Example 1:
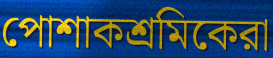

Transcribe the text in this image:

পোশাকশ্রমিকেরা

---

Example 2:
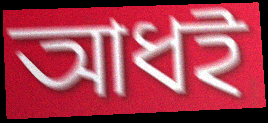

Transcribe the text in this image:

আধই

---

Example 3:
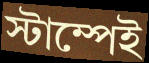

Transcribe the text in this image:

স্টাম্পেই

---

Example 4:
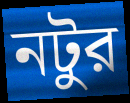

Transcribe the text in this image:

নটুর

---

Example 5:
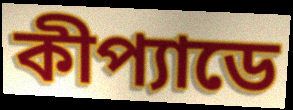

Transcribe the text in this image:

কীপ্যাডে